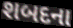
શબદના